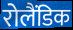
रोलैंडिक